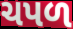
ચપળ